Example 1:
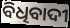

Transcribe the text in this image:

ବିଧିବାଦୀ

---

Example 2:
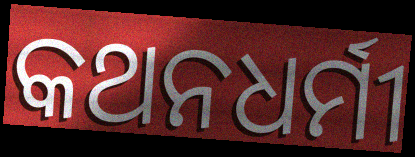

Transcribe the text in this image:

କଥନଧର୍ମୀ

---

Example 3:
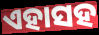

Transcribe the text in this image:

ଏହାସହ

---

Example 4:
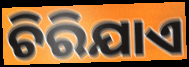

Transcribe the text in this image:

ଚିରିଯାଏ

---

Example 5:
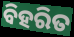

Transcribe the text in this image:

ବିହରିତ